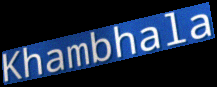
Khambhala